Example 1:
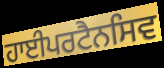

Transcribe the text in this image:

ਹਾਈਪਰਟੈਨਸਿਵ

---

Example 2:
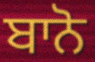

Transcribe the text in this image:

ਬਾਨੋ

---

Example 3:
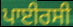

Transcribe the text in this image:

ਪਾਈਰਸੀ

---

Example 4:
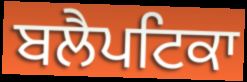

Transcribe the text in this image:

ਬਲੈਪਟਿਕਾ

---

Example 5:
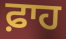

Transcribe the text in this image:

ਫ਼ਾਹ